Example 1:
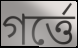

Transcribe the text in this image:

গর্ত্তে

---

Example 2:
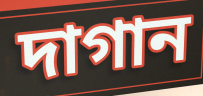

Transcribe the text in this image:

দাগান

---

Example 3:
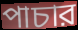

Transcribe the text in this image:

পাচার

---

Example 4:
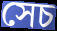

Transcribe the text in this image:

সেচ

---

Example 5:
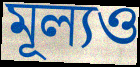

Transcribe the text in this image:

মূল্যও